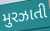
મુરઝાતી